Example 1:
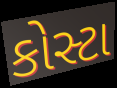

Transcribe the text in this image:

કોસ્ટા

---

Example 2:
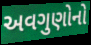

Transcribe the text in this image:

અવગુણોનો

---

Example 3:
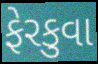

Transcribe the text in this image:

ફેરકુવા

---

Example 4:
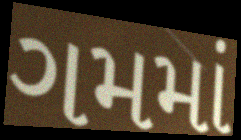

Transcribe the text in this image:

ગમમાં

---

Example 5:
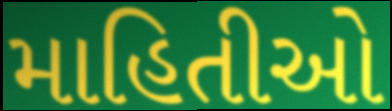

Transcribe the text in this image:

માહિતીઓ